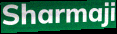
Sharmaji